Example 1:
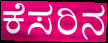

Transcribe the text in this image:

ಕೆಸರಿನ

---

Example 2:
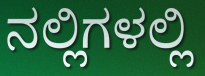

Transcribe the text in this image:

ನಲ್ಲಿಗಳಲ್ಲಿ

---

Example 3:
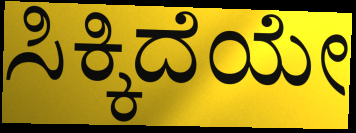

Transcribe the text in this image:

ಸಿಕ್ಕಿದೆಯೇ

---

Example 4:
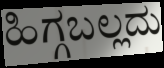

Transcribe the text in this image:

ಹಿಗ್ಗಬಲ್ಲದು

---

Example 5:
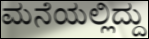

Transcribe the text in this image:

ಮನೆಯಲ್ಲಿದ್ದು